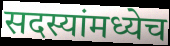
सदस्यांमध्येच